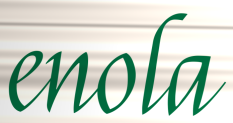
enola